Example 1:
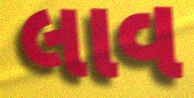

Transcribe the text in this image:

લાવ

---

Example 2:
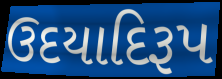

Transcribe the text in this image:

ઉદયાદિરૂપ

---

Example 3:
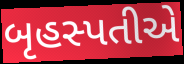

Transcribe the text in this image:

બૃહસ્પતીએ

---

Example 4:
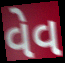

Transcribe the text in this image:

વેવ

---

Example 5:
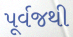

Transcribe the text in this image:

પૂર્વજથી